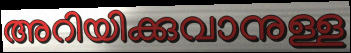
അറിയിക്കുവാനുള്ള